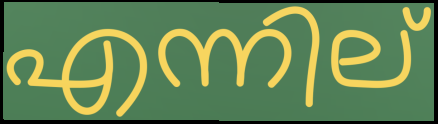
എന്നില്